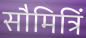
सौमित्रिं